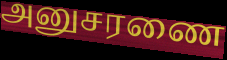
அனுசரணை